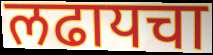
लढायचा